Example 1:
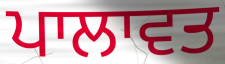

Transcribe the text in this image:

ਪਾਲਾਵਤ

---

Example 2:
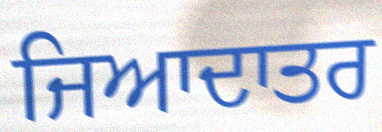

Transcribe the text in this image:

ਜਿਆਦਾਤਰ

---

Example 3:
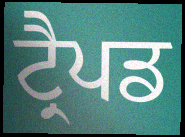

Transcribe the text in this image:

ਟ੍ਰੈਪਡ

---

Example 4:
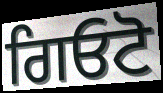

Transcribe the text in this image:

ਗਿਓਟੋ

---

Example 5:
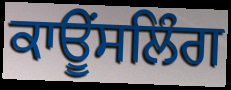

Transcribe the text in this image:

ਕਾਊਂਸਲਿੰਗ